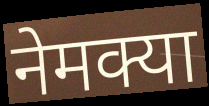
नेमक्या